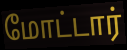
மோட்டார்